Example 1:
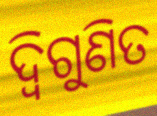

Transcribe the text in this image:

ଦ୍ୱିଗୁଣିତ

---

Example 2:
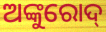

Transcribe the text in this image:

ଅଙ୍କୁରୋଦ୍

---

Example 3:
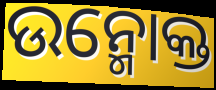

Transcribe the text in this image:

ଉନ୍ମୋକ୍ତ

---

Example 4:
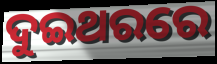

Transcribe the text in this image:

ଦୁଇଥରରେ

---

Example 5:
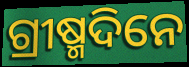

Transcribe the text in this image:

ଗ୍ରୀଷ୍ମଦିନେ